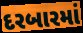
દરબારમાં